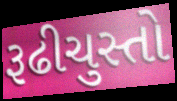
રૂઢીચુસ્તો